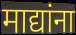
माद्यांना